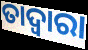
ତାଦ୍ଵାରା